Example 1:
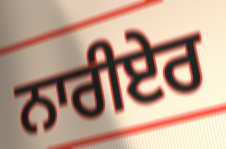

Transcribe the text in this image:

ਨਾਰੀਏਰ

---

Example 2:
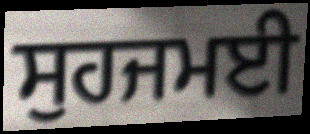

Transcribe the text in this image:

ਸੁਹਜਮਈ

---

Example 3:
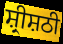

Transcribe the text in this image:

ਸ਼੍ਰੀਸ਼ਠੀ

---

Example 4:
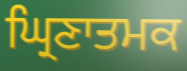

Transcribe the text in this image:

ਘ੍ਰਿਣਾਤਮਕ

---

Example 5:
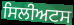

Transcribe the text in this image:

ਸਿਲੀਅਟਸ